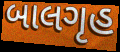
બાલગૃહ